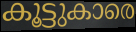
കൂട്ടുകാരെ